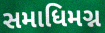
સમાધિમગ્ન